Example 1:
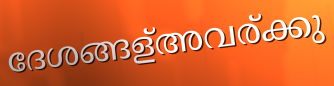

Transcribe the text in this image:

ദേശങ്ങള്അവര്ക്കു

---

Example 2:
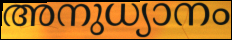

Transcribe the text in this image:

അനുധ്യാനം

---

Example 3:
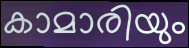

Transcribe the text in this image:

കാമാരിയും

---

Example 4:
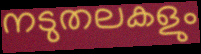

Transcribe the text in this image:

നടുതലകളും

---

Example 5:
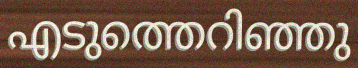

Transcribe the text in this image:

എടുത്തെറിഞ്ഞു